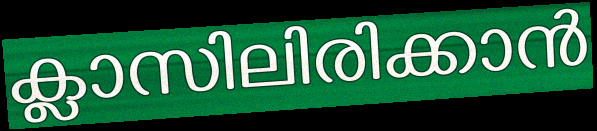
ക്ലാസിലിരിക്കാൻ